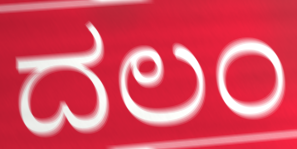
ದಲಂ